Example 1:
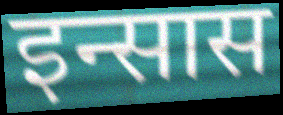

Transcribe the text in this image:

इन्सास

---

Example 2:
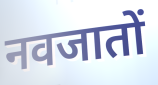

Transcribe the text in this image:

नवजातों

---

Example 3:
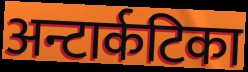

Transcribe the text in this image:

अन्टार्कटिका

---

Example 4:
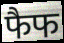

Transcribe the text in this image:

फैफ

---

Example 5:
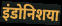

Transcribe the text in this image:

इंडोनिशया